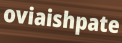
oviaishpate